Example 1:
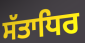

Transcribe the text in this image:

ਸੱਤਾਧਿਰ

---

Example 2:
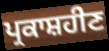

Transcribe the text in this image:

ਪ੍ਰਕਾਸ਼ਹੀਣ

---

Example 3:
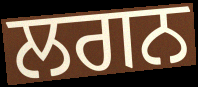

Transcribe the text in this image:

ਲਗਨ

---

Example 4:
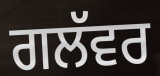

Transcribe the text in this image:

ਗਲੱਵਰ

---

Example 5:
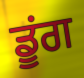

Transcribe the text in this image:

ਡੂਂਗ